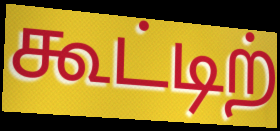
கூட்டிற்